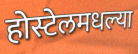
होस्टेलमधल्या